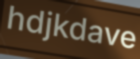
hdjkdave